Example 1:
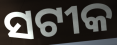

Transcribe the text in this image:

ସଟୀକ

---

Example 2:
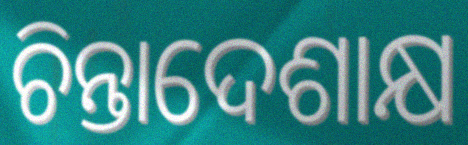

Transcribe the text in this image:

ଚିନ୍ତାଦେଶାକ୍ଷ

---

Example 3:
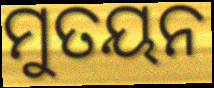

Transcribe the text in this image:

ମୁତୟନ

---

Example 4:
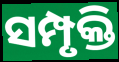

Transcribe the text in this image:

ସମ୍ପୃକ୍ତି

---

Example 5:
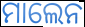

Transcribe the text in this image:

ମାଲେନ